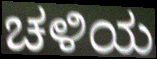
ಚಳಿಯ